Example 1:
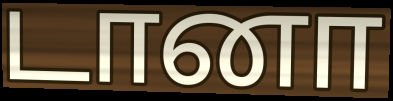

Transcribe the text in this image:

டானா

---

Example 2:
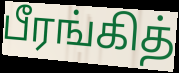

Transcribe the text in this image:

பீரங்கித்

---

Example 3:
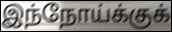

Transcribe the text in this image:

இந்நோய்க்குக்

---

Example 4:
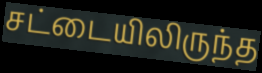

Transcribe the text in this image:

சட்டையிலிருந்த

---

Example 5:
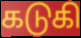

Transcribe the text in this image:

கடுகி